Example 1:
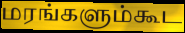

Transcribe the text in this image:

மரங்களும்கூட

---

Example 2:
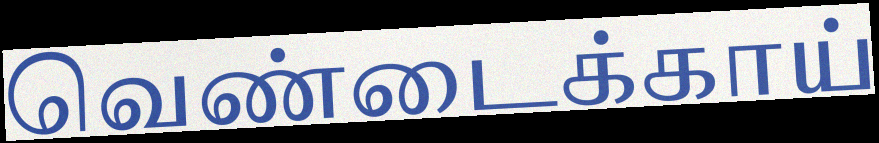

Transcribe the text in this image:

வெண்டைக்காய்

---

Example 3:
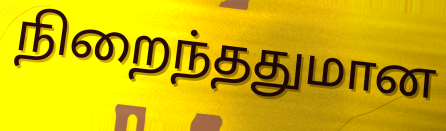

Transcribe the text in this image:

நிறைந்ததுமான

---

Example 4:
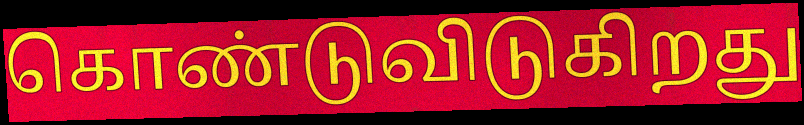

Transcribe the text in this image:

கொண்டுவிடுகிறது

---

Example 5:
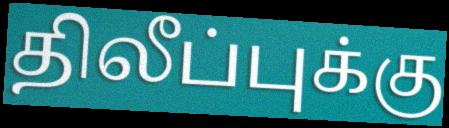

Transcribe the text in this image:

திலீப்புக்கு